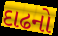
દાઢનો